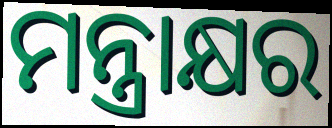
ମନ୍ତ୍ରାକ୍ଷର